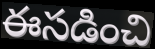
ఈసడించి